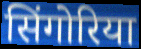
सिंगोरिया